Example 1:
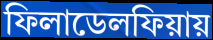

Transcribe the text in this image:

ফিলাডেলফিয়ায়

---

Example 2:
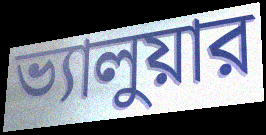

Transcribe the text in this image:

ভ্যালুয়ার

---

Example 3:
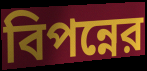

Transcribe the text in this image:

বিপন্নের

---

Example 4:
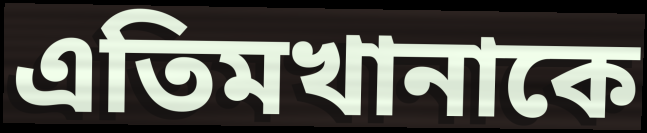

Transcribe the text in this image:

এতিমখানাকে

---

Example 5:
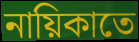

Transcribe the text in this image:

নায়িকাতে